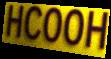
HCOOH